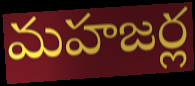
మహజర్ల